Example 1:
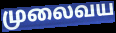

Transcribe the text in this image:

முலைவய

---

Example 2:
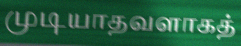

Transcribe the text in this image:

முடியாதவளாகத்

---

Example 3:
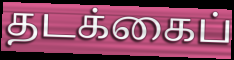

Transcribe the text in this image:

தடக்கைப்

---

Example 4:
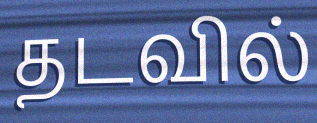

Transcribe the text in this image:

தடவில்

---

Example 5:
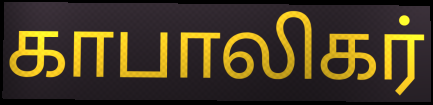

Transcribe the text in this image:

காபாலிகர்